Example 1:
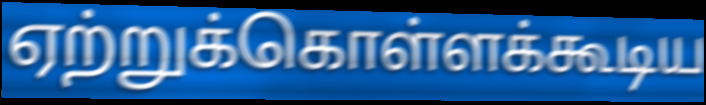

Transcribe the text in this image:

ஏற்றுக்கொள்ளக்கூடிய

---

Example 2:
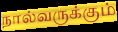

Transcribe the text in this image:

நால்வருக்கும்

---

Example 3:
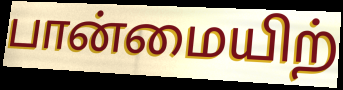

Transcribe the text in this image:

பான்மையிற்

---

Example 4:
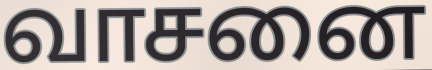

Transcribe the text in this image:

வாசனை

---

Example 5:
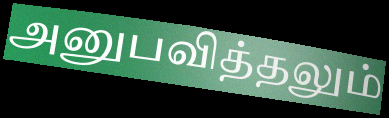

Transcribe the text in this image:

அனுபவித்தலும்